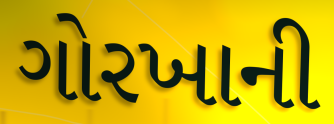
ગોરખાની